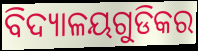
ବିଦ୍ୟାଳୟଗୁଡିକର